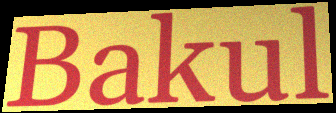
Bakul